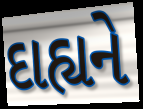
દાહ્યને